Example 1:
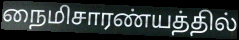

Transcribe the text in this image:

நைமிசாரண்யத்தில்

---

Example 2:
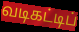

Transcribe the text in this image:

வடிகட்டிப்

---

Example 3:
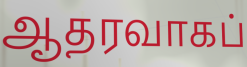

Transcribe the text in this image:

ஆதரவாகப்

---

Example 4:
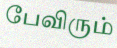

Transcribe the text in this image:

பேவிரும்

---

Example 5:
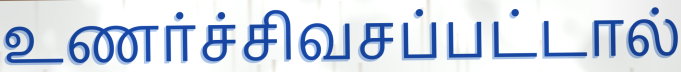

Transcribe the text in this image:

உணர்ச்சிவசப்பட்டால்